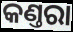
କଣ୍ତରା